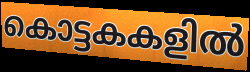
കൊട്ടകകളിൽ